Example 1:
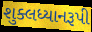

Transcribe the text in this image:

શુક્લધ્યાનરૂપી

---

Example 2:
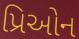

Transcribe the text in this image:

પ્રિઓન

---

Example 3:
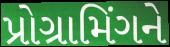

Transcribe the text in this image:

પ્રોગ્રામિંગને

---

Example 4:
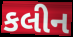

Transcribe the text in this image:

કલીન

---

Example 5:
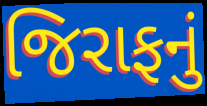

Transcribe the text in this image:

જિરાફનું